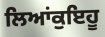
ਲਿਆਂਕੁਇਹੂ